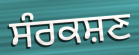
ਸੰਰਕਸ਼ਣ